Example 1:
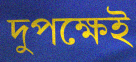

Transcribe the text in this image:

দুপক্ষেই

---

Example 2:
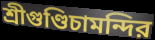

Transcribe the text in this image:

শ্রীগুণ্ডিচামন্দির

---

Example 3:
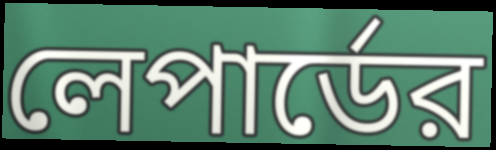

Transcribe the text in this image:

লেপার্ডের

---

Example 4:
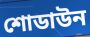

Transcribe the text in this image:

শোডাউন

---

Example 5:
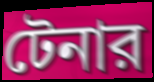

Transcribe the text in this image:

টেনার